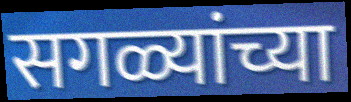
सगळ्यांच्या